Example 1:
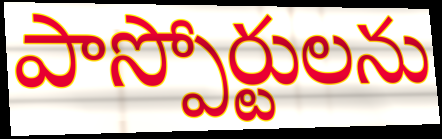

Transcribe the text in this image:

పాస్పోర్టులను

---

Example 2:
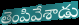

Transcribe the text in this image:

తెంపివేశాడు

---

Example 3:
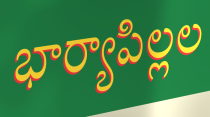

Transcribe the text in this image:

భార్యాపిల్లల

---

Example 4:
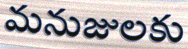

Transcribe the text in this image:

మనుజులకు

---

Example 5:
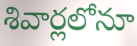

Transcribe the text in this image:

శివార్లలోనూ